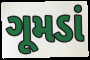
ગૂમડાં